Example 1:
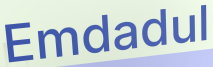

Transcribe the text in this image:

Emdadul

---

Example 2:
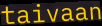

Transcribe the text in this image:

taivaan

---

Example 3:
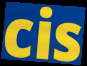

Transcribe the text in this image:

cis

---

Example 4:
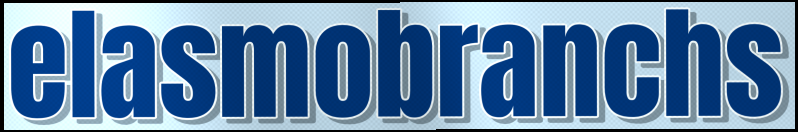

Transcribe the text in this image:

elasmobranchs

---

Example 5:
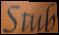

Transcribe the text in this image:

Stub